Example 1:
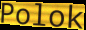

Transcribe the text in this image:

Polok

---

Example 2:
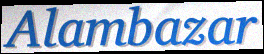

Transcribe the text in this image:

Alambazar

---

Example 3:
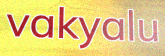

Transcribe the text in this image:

vakyalu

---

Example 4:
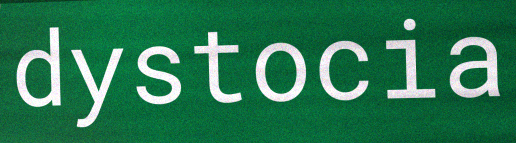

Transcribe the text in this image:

dystocia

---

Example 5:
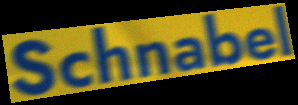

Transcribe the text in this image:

Schnabel